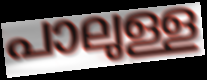
പാലുള്ള